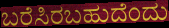
ಬರೆಸಿರಬಹುದೆಂದು